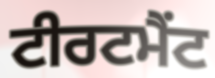
ਟੀਰਟਮੈਂਟ